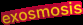
exosmosis